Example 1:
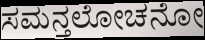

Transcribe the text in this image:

ಸಮನ್ತಲೋಚನೋ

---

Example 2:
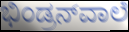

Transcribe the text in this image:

ಭಿಂಡ್ರನ್‌ವಾಲೆ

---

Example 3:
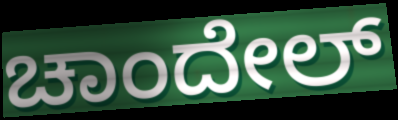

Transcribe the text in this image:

ಚಾಂದೇಲ್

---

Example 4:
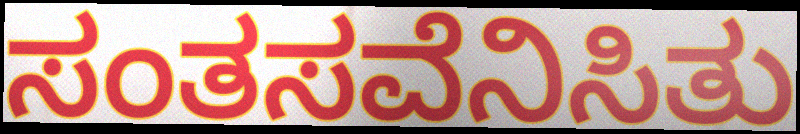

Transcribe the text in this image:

ಸಂತಸವೆನಿಸಿತು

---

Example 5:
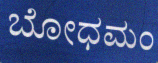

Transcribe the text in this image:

ಬೋಧಮಂ